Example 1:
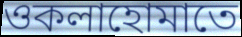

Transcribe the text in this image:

ওকলাহোমাতে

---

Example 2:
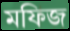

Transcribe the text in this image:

মফিজ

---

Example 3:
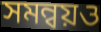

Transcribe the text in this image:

সমন্বয়ও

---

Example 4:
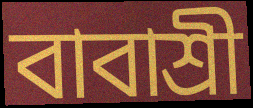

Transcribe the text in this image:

বাবাশ্রী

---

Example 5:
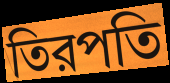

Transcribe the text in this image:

তিরপতি